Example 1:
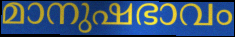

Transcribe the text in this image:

മാനുഷഭാവം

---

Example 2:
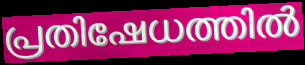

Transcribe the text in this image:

പ്രതിഷേധത്തിൽ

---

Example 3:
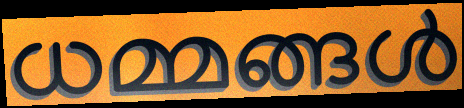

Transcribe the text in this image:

ധമ്മങ്ങൾ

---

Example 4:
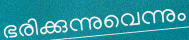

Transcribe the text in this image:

ഭരിക്കുന്നുവെന്നും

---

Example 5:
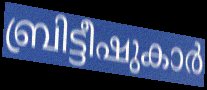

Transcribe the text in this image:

ബ്രിട്ടീഷുകാർ